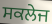
ਸਕਲੇਜ